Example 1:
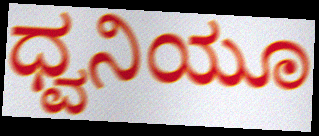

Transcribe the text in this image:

ಧ್ವನಿಯೂ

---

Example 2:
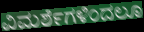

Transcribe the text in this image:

ವಿಮರ್ಶೆಗಳಿಂದಲೂ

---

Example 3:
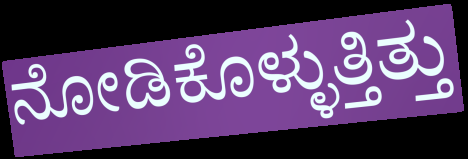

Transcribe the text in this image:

ನೋಡಿಕೊಳ್ಳುತ್ತಿತ್ತು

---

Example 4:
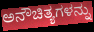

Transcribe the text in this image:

ಅನೌಚಿತ್ಯಗಳನ್ನು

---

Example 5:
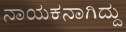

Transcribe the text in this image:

ನಾಯಕನಾಗಿದ್ದು